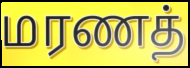
மரணத்